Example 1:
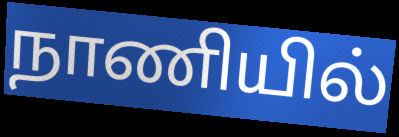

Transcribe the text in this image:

நாணியில்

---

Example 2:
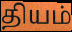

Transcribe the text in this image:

தியம்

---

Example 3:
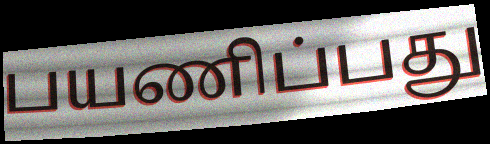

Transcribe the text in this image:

பயணிப்பது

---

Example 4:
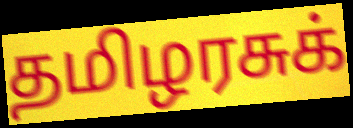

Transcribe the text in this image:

தமிழரசுக்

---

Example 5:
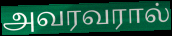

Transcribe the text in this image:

அவரவரால்